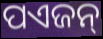
ପଏଜନ୍